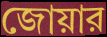
জোয়ার